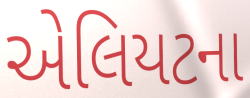
એલિયટના